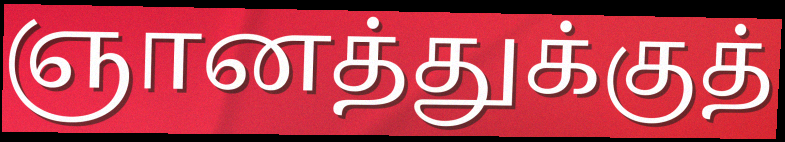
ஞானத்துக்குத்